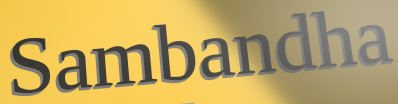
Sambandha